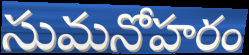
సుమనోహరం